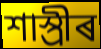
শাস্ত্ৰীৰ